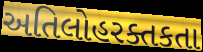
અતિલોહરક્તકતા